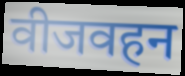
वीजवहन